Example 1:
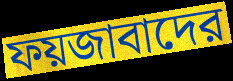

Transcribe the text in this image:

ফয়জাবাদের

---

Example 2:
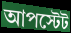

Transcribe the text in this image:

আপস্টেট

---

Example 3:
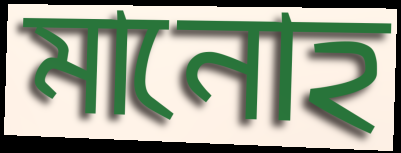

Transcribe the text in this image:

মানোহ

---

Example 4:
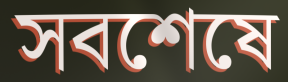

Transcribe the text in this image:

সবশেষে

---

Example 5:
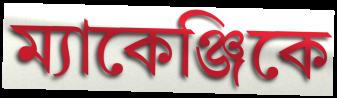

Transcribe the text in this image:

ম্যাকেঞ্জিকে